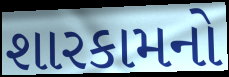
શારકામનો